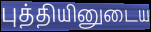
புத்தியினுடைய